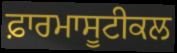
ਫ਼ਾਰਮਾਸੂਟੀਕਲ